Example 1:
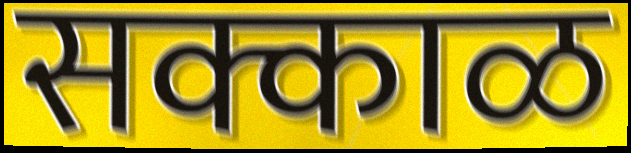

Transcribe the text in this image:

सक्काळ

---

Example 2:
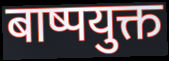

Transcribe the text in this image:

बाष्पयुक्त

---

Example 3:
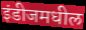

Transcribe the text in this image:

इंडीजमधील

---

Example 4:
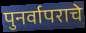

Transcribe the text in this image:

पुनर्वापराचे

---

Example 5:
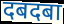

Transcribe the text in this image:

दबदबा